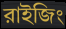
রাইজিং